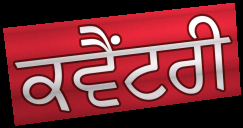
ਕਵੈਂਟਰੀ